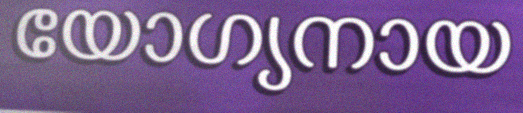
യോഗ്യനായ